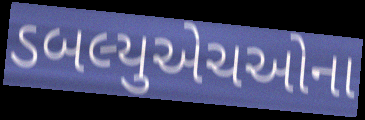
ડબલ્યુએચઓના